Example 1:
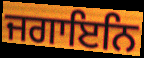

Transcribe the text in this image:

ਜਗਾਇਨਿ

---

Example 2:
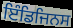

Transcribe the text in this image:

ਇੰਡਿਜਿਨਸ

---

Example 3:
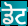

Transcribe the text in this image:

ਡੋਟ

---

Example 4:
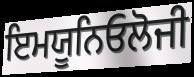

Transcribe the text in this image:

ਇਮਯੂਨਿਓਲੋਜੀ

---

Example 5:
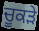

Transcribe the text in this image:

ਚੂਕੜੇ